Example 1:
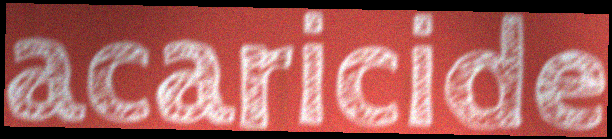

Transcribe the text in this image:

acaricide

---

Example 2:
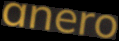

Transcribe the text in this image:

anero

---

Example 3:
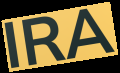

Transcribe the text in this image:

IRA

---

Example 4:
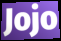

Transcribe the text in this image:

Jojo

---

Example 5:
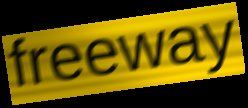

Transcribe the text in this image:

freeway